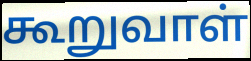
கூறுவாள்